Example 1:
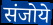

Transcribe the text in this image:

संजोये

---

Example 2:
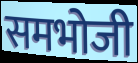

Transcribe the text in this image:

समभोजी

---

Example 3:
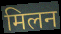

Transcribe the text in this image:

मिलन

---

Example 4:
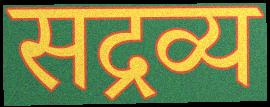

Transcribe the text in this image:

सद्रव्य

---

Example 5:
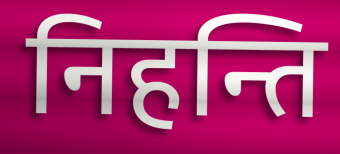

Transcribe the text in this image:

निहन्ति